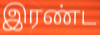
இரண்ட